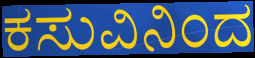
ಕಸುವಿನಿಂದ